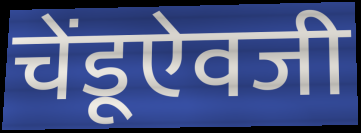
चेंडूऐवजी